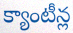
క్యాంటీన్ల